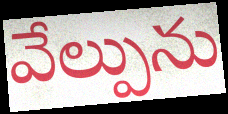
వేల్పును